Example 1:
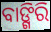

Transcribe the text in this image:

ବାଙ୍ଗିରି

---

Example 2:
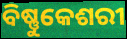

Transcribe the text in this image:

ବିଷ୍ଣୁକେଶରୀ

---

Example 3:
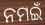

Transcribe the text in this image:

ନମଇଁ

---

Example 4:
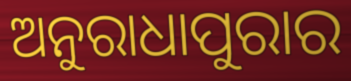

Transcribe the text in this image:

ଅନୁରାଧାପୁରାର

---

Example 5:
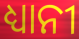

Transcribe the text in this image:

ଧ୍ୟାନୀ